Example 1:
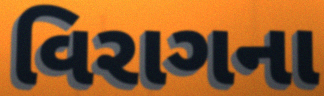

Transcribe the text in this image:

વિરાગના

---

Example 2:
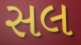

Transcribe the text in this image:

સલ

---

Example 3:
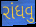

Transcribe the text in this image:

રાંધવુ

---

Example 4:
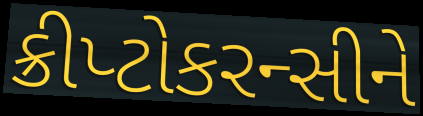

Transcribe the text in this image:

ક્રીપ્ટોકરન્સીને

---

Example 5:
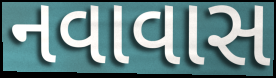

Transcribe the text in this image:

નવાવાસ